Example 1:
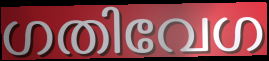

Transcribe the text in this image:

ഗതിവേഗ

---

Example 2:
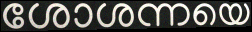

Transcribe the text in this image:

ശോശന്നയെ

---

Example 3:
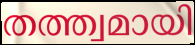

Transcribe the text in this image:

തത്ത്വമായി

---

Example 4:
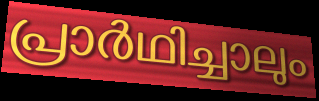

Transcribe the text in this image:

പ്രാർഥിച്ചാലും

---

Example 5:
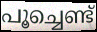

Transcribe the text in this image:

പൂച്ചെണ്ട്